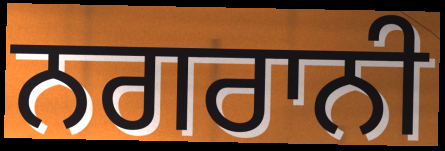
ਨਗਰਾਨੀ